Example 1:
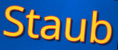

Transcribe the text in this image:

Staub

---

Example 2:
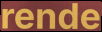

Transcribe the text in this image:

rende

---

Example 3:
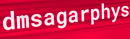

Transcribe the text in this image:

dmsagarphys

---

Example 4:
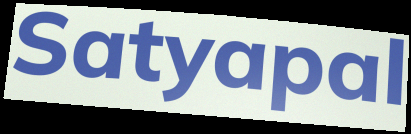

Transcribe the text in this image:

Satyapal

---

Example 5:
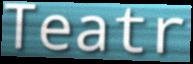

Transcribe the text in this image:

Teatr